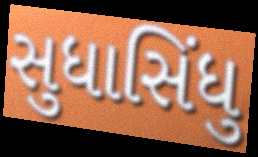
સુધાસિંધુ